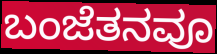
ಬಂಜೆತನವೂ